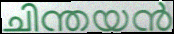
ചിന്തയൻ